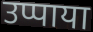
उप्पाया